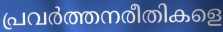
പ്രവർത്തനരീതികളെ